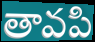
తావపి